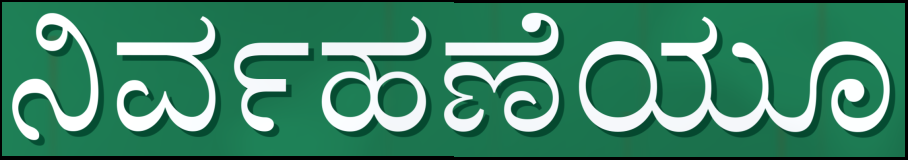
ನಿರ್ವಹಣೆಯೂ